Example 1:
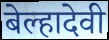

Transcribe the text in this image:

बेल्हादेवी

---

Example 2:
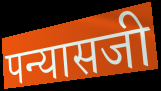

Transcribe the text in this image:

पन्यासजी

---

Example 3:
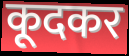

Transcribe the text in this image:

कूदकर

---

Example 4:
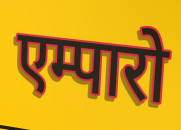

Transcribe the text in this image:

एम्पारो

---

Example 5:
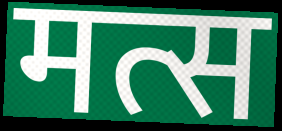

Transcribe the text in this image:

मत्स